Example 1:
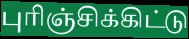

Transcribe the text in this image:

புரிஞ்சிக்கிட்டு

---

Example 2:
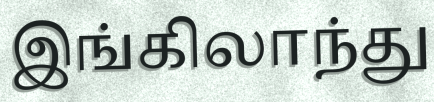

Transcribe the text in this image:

இங்கிலாந்து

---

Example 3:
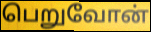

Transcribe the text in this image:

பெறுவோன்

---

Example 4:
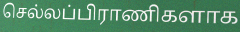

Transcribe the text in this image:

செல்லப்பிராணிகளாக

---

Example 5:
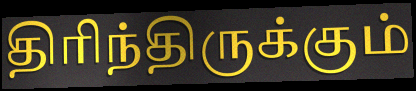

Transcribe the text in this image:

திரிந்திருக்கும்